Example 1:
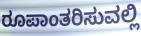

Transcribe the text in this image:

ರೂಪಾಂತರಿಸುವಲ್ಲಿ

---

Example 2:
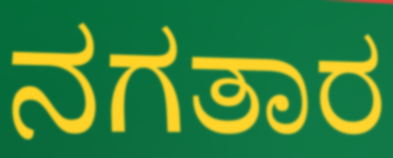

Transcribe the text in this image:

ನಗತಾರ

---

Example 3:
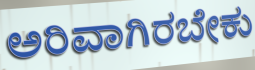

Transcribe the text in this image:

ಅರಿವಾಗಿರಬೇಕು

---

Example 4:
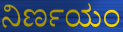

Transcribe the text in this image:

ನಿರ್ಣಯಂ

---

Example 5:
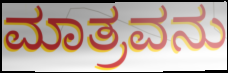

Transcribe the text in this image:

ಮಾತ್ರವನು